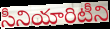
సీనియారిటీని